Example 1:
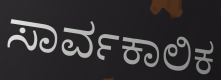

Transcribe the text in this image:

ಸಾರ್ವಕಾಲಿಕ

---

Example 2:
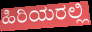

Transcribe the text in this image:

ಹಿರಿಯರಲ್ಲಿ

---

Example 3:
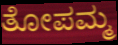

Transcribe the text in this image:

ತೋಪಮ್ಮ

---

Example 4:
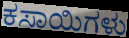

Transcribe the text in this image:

ಕಸಾಯಿಗಳು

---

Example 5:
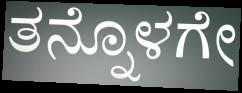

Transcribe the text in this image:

ತನ್ನೊಳಗೇ